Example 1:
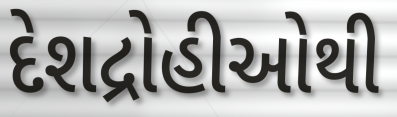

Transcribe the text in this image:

દેશદ્રોહીઓથી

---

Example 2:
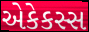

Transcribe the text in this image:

એકેકસ્સ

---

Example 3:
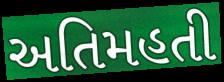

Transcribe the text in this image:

અતિમહતી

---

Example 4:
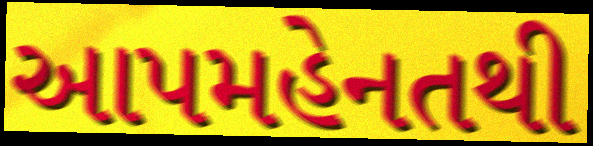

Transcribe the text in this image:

આપમહેનતથી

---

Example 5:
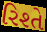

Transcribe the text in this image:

રિશ્તે